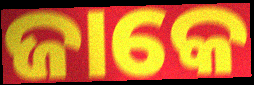
ଜାକେ